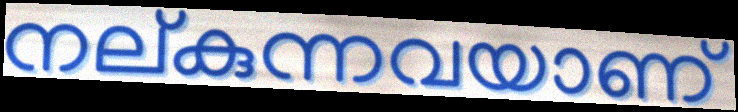
നല്കുന്നവയാണ്